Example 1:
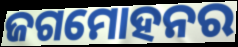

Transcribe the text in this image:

ଜଗମୋହନର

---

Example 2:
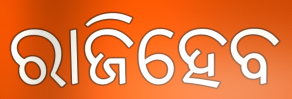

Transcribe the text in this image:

ରାଜିହେବ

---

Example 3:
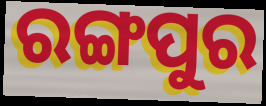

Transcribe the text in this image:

ରଙ୍ଗପୁର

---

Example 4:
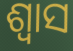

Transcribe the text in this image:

ଶ୍ୱାସ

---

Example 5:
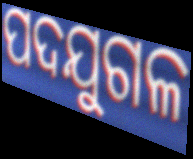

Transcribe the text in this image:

ପଦଯୁଗଳ